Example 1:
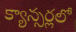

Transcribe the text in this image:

క్యాన్సర్లలో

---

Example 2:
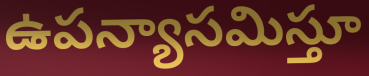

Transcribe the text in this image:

ఉపన్యాసమిస్తూ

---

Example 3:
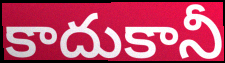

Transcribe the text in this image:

కాదుకానీ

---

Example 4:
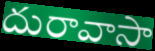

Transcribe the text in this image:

దురావాసా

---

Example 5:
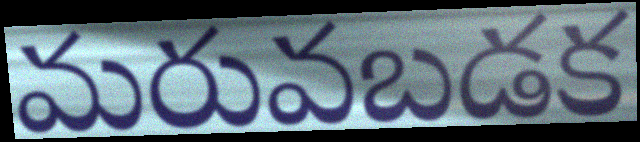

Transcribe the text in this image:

మరువబడక